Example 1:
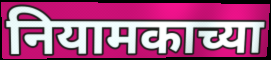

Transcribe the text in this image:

नियामकाच्या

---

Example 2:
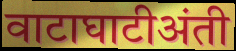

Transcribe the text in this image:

वाटाघाटीअंती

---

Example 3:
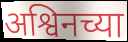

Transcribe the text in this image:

अश्विनच्या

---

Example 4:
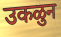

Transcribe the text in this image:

उकळुन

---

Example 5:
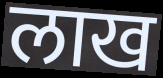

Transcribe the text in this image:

लाख